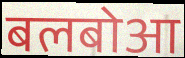
बलबोआ